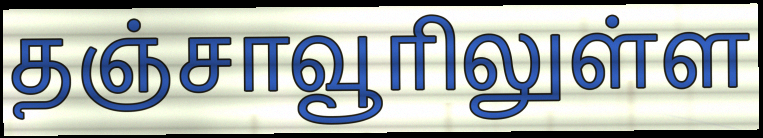
தஞ்சாவூரிலுள்ள